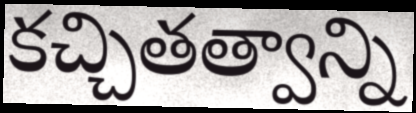
కచ్చితత్వాన్ని